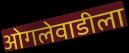
ओगलेवाडीला